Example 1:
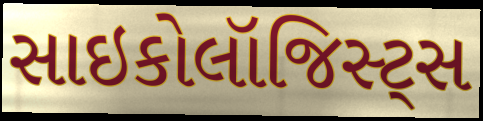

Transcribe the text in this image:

સાઇકોલૉજિસ્ટ્સ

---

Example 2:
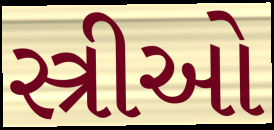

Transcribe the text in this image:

સ્ત્રીઓ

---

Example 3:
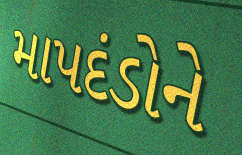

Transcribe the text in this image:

માપદંડોને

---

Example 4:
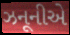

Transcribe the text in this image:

ઝનૂનીએ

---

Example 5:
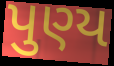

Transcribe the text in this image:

પુણ્ય